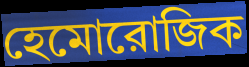
হেমোরোজিক